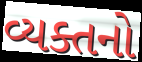
વ્યક્તનો